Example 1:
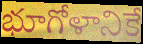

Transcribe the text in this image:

భూగోళానికే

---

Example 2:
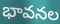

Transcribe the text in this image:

భావనల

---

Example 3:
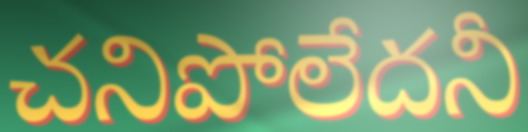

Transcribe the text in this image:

చనిపోలేదనీ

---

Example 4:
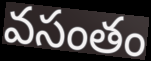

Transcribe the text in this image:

వసంతం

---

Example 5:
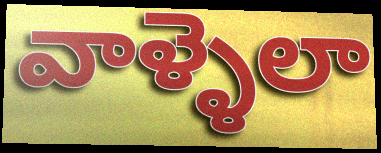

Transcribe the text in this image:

వాళ్ళెలా